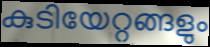
കുടിയേറ്റങ്ങളും